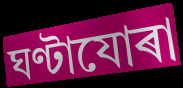
ঘণ্টাযোৰা